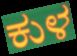
ಕುಳ